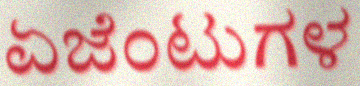
ಏಜೆಂಟುಗಳ